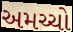
અમચ્ચો